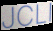
JCLI